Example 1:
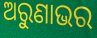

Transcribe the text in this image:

ଅରୁଣାଭର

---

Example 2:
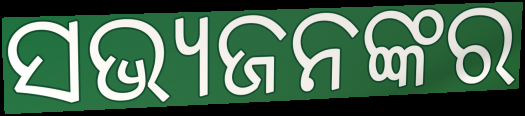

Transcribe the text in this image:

ସଭ୍ୟଜନଙ୍କର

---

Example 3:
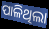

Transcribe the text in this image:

ପାଳିଥିଲା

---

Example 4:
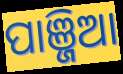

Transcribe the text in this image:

ପାଞ୍ଜିଆ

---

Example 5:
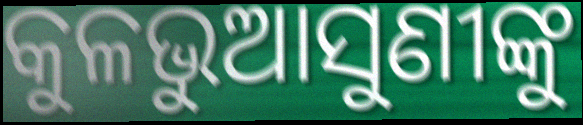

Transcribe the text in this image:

କୁଳଭୁଆସୁଣୀଙ୍କୁ